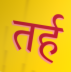
तर्ह